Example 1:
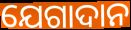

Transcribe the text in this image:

ଯେଗାଦାନ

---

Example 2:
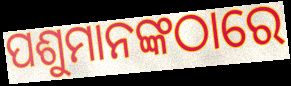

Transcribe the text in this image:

ପଶୁମାନଙ୍କଠାରେ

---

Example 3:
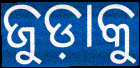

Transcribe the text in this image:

ଜୁଡ଼ାକୁ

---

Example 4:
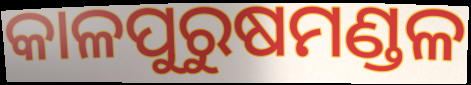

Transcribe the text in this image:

କାଳପୁରୁଷମଣ୍ଡଳ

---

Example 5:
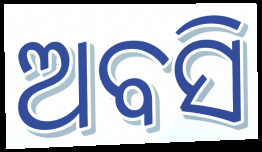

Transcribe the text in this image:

ଅବସି